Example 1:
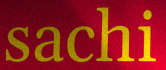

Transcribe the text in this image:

sachi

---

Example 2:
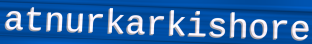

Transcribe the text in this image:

atnurkarkishore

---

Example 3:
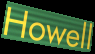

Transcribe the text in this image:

Howell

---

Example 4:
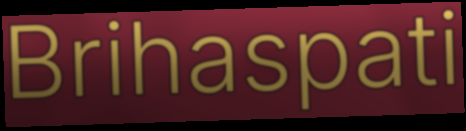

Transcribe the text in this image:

Brihaspati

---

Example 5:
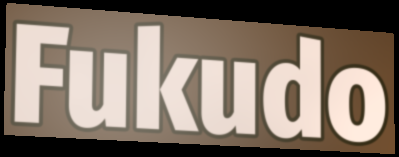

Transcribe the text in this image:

Fukudo